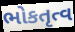
ભોકતૃત્વ